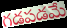
గడపడమే